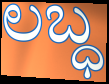
ಲಬ್ಧ